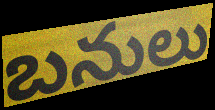
బనులు